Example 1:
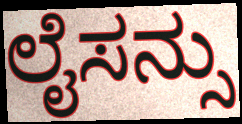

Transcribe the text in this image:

ಲೈಸನ್ಸು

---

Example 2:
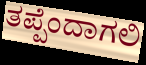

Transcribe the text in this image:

ತಪ್ಪೆಂದಾಗಲಿ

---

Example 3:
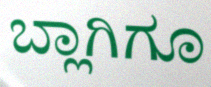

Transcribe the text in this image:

ಬ್ಲಾಗಿಗೂ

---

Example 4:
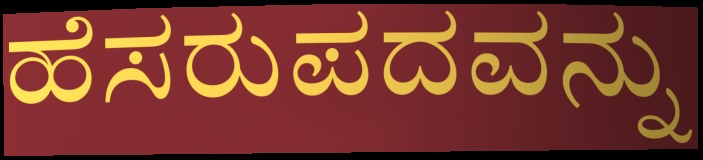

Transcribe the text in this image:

ಹೆಸರುಪದವನ್ನು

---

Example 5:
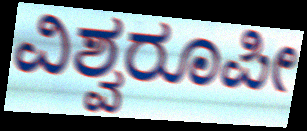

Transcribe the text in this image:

ವಿಶ್ವರೂಪೀ